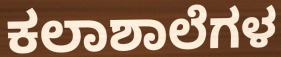
ಕಲಾಶಾಲೆಗಳ